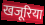
खजूरिया